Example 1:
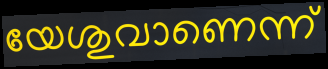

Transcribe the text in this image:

യേശുവാണെന്ന്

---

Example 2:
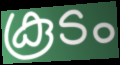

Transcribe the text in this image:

കൂടം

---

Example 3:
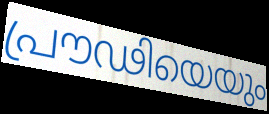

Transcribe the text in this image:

പ്രൗഢിയെയും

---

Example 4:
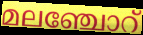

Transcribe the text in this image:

മലഞ്ചോറ്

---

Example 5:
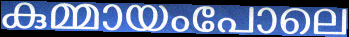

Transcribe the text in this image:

കുമ്മായംപോലെ